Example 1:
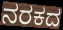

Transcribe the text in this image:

ನರಕದ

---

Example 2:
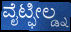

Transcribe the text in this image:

ವೈಟ್ಫೀಲ್ಡ್ನ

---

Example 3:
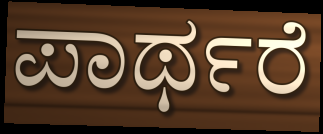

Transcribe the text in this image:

ಪಾರ್ಥರೆ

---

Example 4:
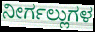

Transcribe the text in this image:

ನೀರ್ಗಲ್ಲುಗಳ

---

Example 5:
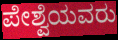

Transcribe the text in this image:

ಪೇಶ್ವೆಯವರು